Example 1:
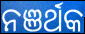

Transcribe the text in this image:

ନଞର୍ଥକ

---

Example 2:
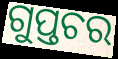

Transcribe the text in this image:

ଗୁପ୍ତଚର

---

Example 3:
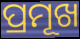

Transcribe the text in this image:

ପ୍ରମୂଖ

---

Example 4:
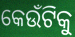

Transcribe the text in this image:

କେଉଁଟିକୁ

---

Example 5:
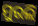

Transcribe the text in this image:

ମୁରଲି